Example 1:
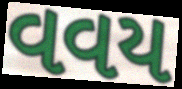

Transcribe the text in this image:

વવય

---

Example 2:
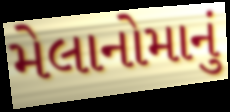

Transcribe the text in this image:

મેલાનોમાનું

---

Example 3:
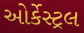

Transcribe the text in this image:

ઓર્કેસ્ટ્રલ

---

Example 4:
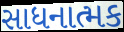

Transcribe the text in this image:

સાધનાત્મક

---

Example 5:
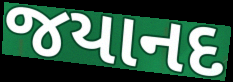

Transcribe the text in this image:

જયાનદ